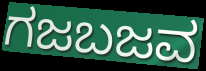
ಗಜಬಜವ